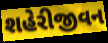
શહેરીજીવન